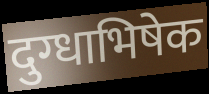
दुग्धाभिषेक